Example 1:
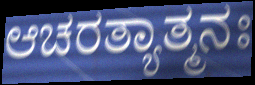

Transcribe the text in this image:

ಆಚರತ್ಯಾತ್ಮನಃ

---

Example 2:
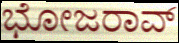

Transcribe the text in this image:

ಭೋಜರಾವ್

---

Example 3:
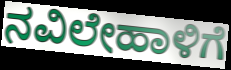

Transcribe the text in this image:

ನವಿಲೇಹಾಳಿಗೆ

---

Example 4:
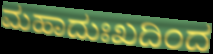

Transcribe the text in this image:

ಮಹಾದುಃಖದಿಂದ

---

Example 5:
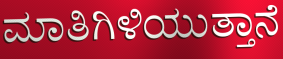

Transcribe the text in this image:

ಮಾತಿಗಿಳಿಯುತ್ತಾನೆ